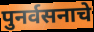
पुनर्वसनाचे